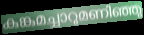
കുങ്കുമച്ചാറുമണിഞ്ഞു